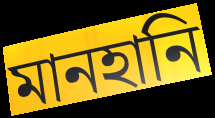
মানহানি